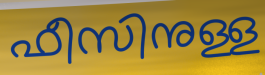
ഫീസിനുള്ള